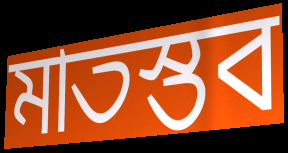
মাতস্তব